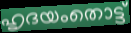
ഹൃദയംതൊട്ട്